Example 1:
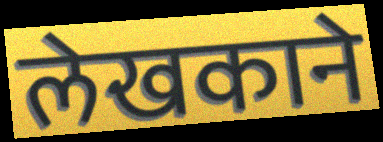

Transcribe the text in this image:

लेखकाने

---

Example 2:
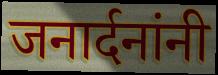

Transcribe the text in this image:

जनार्दनांनी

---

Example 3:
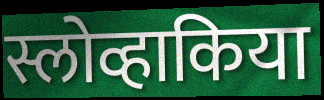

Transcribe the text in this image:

स्लोव्हाकिया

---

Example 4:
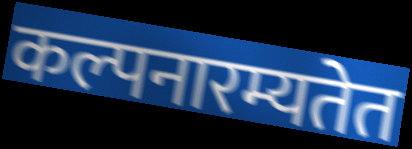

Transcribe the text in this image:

कल्पनारम्यतेत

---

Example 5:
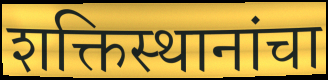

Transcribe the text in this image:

शक्तिस्थानांचा